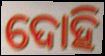
ଦୋହି